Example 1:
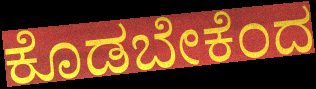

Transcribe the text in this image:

ಕೊಡಬೇಕೆಂದ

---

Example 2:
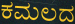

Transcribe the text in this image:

ಕಮಲದ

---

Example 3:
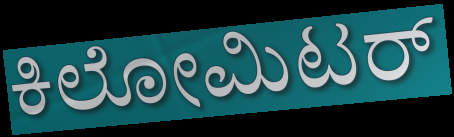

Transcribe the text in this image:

ಕಿಲೋಮಿಟರ್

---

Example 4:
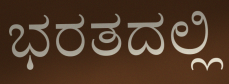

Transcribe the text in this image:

ಭರತದಲ್ಲಿ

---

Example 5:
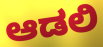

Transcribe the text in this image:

ಆಡಲಿ